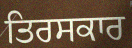
ਤਿਰਸਕਾਰ